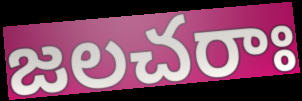
జలచరాః